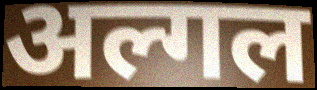
अल्गल